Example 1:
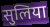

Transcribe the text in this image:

सुलिया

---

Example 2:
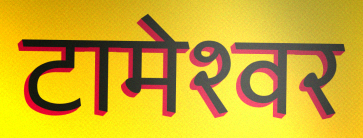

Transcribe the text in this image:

टामेश्वर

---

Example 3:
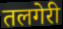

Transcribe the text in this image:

तलगेरी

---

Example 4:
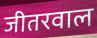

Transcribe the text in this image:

जीतरवाल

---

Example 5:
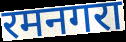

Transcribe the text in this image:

रमनगरा